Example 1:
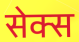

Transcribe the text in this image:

सेक्स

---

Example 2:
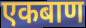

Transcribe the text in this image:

एकबाण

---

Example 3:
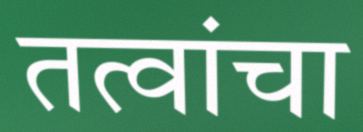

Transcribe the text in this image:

तत्वांचा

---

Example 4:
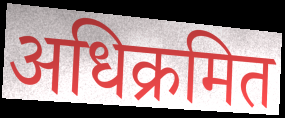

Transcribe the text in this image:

अधिक्रमित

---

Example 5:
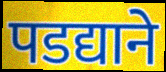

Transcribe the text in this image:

पडद्याने